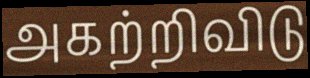
அகற்றிவிடு